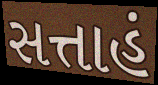
સત્તાહં